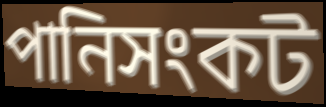
পানিসংকট